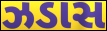
ઝડાસ